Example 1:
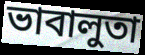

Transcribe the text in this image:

ভাবালুতা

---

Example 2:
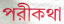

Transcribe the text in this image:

পরীকথা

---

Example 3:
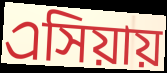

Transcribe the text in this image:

এসিয়ায়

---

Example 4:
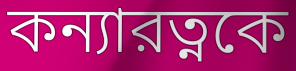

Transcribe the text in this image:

কন্যারত্নকে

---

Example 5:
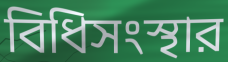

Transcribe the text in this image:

বিধিসংস্থার